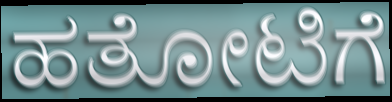
ಹತೋಟಿಗೆ